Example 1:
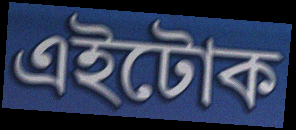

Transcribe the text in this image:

এইটোক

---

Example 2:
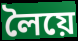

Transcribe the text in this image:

লৈয়ে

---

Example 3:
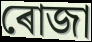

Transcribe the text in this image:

ৰোজা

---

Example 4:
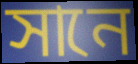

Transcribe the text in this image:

সানে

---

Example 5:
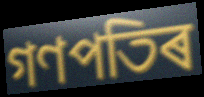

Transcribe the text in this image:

গণপতিৰ